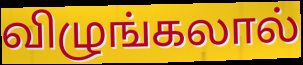
விழுங்கலால்